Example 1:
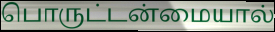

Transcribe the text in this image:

பொருட்டன்மையால்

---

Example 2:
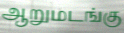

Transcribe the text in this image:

ஆறுமடங்கு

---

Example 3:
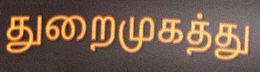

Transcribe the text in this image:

துறைமுகத்து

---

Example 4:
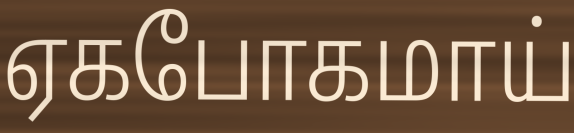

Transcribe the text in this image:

ஏகபோகமாய்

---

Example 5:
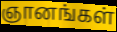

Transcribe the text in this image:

ஞானங்கள்